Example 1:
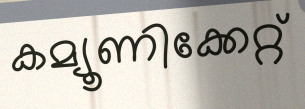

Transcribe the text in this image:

കമ്യൂണിക്കേറ്റ്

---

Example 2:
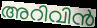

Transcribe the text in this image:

അറിവിൻ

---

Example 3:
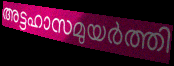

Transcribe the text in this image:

അട്ടഹാസമുയർത്തി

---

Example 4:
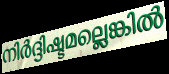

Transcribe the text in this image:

നിർദ്ദിഷ്ടമല്ലെങ്കിൽ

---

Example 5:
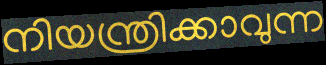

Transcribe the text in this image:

നിയന്ത്രിക്കാവുന്ന